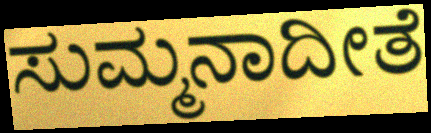
ಸುಮ್ಮನಾದೀತೆ